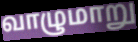
வாழுமாறு